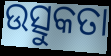
ଉତ୍ସୁକତା